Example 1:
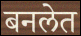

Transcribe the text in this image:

बनलेत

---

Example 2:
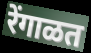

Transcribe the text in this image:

रेंगाळत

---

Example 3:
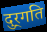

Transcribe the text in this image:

दुर्गति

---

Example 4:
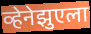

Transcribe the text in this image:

व्हेनेझुएला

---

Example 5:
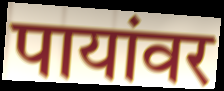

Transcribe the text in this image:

पायांवर